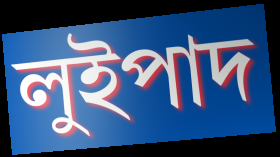
লুইপাদ